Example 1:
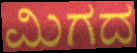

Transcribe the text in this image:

ಮಿಗದ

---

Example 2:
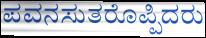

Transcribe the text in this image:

ಪವನಸುತರೊಪ್ಪಿದರು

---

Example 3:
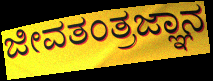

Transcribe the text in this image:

ಜೀವತಂತ್ರಜ್ಞಾನ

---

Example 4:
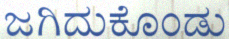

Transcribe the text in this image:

ಜಗಿದುಕೊಂಡು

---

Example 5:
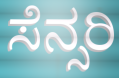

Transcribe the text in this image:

ಸೆನ್ಸರಿ